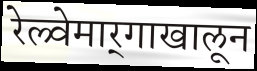
रेल्वेमार्गाखालून